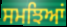
ਸਮਝਿਆਂ